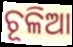
ଚୂଳିଆ